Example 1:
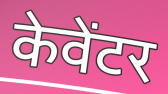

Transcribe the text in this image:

केवेंटर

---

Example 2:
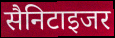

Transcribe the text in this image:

सैनिटाइजर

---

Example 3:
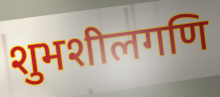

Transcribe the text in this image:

शुभशीलगणि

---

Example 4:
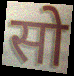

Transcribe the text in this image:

सो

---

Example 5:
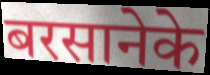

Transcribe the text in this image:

बरसानेके